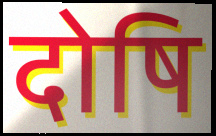
दोषि